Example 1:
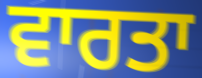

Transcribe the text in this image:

ਵਾਰਤਾ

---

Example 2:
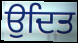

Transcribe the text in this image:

ਉਦਿਤ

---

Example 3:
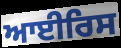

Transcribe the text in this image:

ਆਈਰਿਸ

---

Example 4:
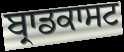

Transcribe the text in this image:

ਬ੍ਰਾਡਕਾਸਟ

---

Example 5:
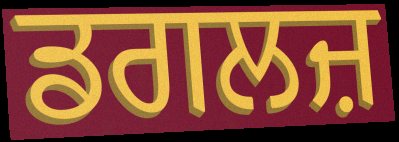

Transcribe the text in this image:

ਡਗਲਜ਼